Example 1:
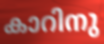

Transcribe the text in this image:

കാറിനു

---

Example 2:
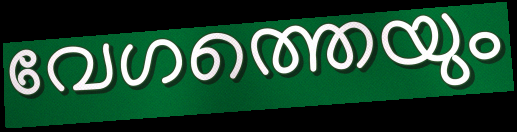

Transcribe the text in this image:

വേഗത്തെയും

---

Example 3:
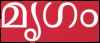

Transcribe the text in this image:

മൃഗം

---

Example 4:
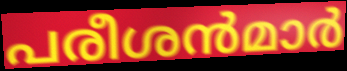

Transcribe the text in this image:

പരീശൻമാർ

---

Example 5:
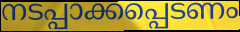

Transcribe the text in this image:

നടപ്പാക്കപ്പെടണം